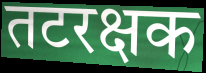
तटरक्षक